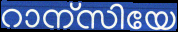
റാന്സിയേ